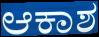
ಆಕಾಶ